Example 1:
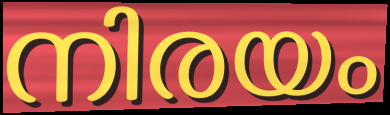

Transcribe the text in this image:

നിരയം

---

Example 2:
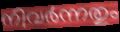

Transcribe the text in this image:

നിവർന്നതും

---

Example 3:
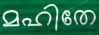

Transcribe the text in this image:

മഹിതേ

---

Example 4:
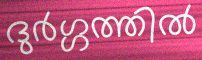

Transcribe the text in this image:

ദുർഗ്ഗത്തിൽ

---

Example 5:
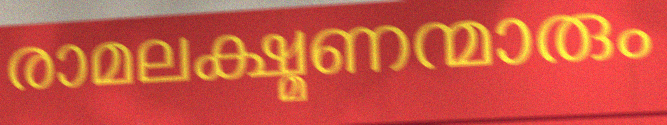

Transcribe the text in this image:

രാമലക്ഷ്മണന്മാരും